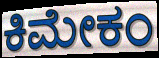
ಕಿಮೇಕಂ